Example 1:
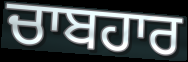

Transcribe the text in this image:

ਚਾਬਹਾਰ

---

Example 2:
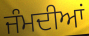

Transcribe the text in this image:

ਜੰਮਦੀਆਂ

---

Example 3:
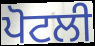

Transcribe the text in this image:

ਪੋਟਲੀ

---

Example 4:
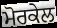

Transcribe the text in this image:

ਮੋਰਕੇਲ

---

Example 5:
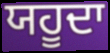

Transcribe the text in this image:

ਯਹੂਦਾ